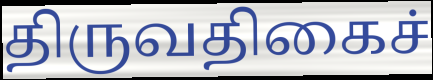
திருவதிகைச்